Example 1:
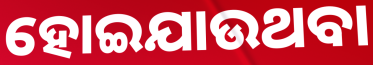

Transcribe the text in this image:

ହୋଇଯାଉଥବା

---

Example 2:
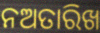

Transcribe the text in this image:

ନଅତାରିଖ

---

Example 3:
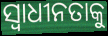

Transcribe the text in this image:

ସ୍ବାଧୀନତାକୁ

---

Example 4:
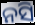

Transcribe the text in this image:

ନସି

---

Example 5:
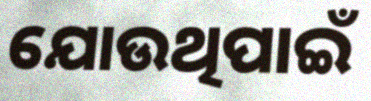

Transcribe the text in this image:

ଯୋଉଥିପାଇଁ